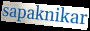
sapaknikar